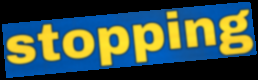
stopping